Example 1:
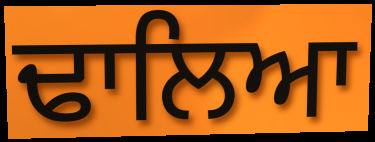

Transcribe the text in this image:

ਢਾਲਿਆ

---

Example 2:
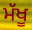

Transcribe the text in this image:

ਮੱਖੂ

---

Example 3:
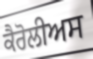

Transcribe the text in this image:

ਕੈਰੋਲੀਅਸ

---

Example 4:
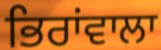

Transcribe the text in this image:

ਭਿਰਾਂਵਾਲਾ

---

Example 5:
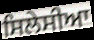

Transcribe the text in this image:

ਸਿਲੇਸੀਆ